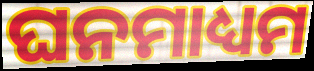
ଘନମାଧ୍ୟମ